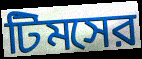
টিমসের